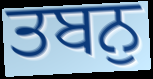
ਤਬਨੁ